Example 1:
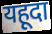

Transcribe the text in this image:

यहूदा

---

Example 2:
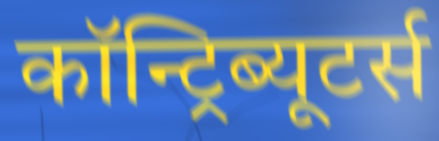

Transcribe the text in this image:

कॉन्ट्रिब्यूटर्स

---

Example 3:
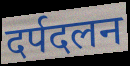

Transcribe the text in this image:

दर्पदलन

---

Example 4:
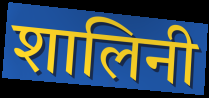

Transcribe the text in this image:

शालिनी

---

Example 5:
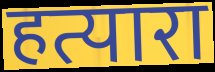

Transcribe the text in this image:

हत्यारा